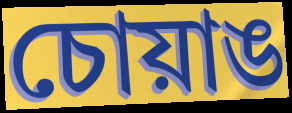
চোয়াঙ